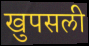
खुपसली